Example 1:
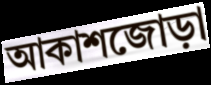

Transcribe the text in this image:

আকাশজোড়া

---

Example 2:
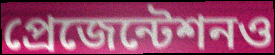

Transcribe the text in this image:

প্রেজেন্টেশনও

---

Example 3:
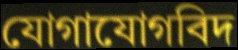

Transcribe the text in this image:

যোগাযোগবিদ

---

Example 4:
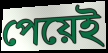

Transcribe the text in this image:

পেয়েই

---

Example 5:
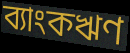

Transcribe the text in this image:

ব্যাংকঋণ